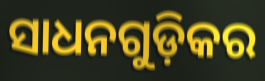
ସାଧନଗୁଡ଼ିକର